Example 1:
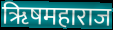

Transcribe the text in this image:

ॠिषमहाराज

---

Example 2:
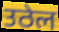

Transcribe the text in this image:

उठेल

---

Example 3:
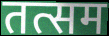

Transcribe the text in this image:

तत्सम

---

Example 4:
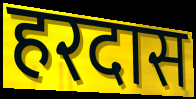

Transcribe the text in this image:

हरदास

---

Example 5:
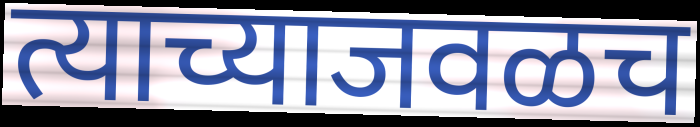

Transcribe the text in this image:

त्याच्याजवळच